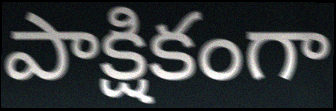
పాక్షికంగా